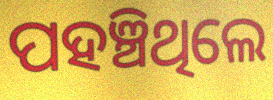
ପହଞ୍ଚିଥିଲେ